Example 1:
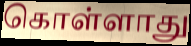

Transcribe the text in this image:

கொள்ளாது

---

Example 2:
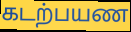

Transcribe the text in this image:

கடற்பயண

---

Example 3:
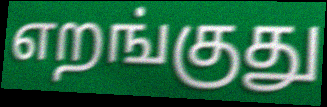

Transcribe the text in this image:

எறங்குது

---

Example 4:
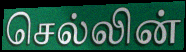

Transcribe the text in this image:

செல்லின்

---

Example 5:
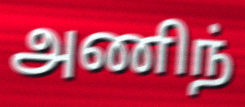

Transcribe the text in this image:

அணிந்